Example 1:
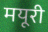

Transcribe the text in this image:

मयूरी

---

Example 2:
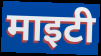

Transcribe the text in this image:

माइटी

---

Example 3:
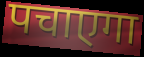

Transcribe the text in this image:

पचाएगा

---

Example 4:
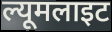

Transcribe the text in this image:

ल्यूमलाइट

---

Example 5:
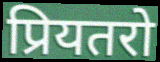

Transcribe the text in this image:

प्रियतरो